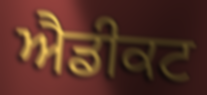
ਐਡੀਕਟ